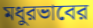
মধুরভাবের